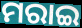
ମରାଇ